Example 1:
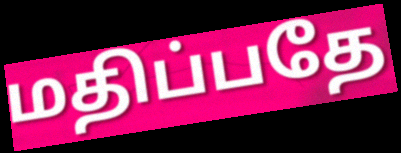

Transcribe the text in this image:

மதிப்பதே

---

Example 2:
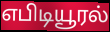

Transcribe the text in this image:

எபிடியூரல்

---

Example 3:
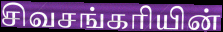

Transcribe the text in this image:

சிவசங்கரியின்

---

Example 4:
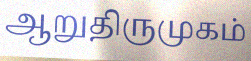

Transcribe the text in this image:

ஆறுதிருமுகம்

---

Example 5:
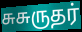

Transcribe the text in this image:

சுசுருதர்